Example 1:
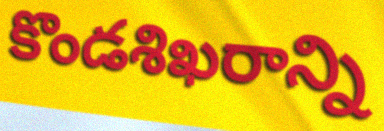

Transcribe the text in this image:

కొండశిఖరాన్ని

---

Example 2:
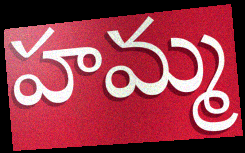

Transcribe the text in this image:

హమ్మ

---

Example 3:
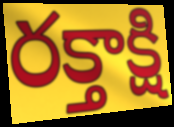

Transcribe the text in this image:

రక్తాక్షి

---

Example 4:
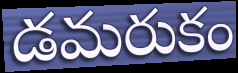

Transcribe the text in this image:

డమరుకం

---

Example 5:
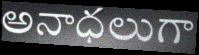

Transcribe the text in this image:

అనాధలుగా